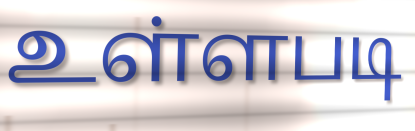
உள்ளபடி